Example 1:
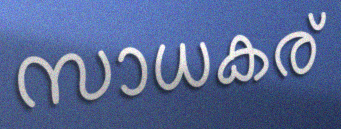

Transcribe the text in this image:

സാധകര്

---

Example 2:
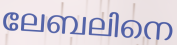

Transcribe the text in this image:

ലേബലിനെ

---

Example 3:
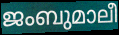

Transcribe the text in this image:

ജംബുമാലീ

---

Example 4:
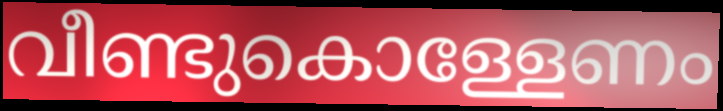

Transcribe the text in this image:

വീണ്ടുകൊള്ളേണം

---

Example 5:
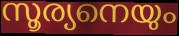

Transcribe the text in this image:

സൂര്യനെയും